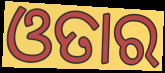
ଓତାର